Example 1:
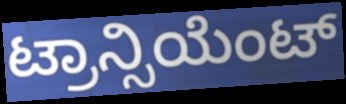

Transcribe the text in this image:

ಟ್ರಾನ್ಸಿಯೆಂಟ್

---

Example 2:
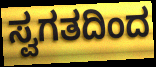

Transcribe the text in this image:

ಸ್ವಗತದಿಂದ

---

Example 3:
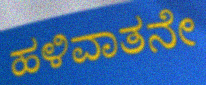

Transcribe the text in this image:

ಹಳಿವಾತನೇ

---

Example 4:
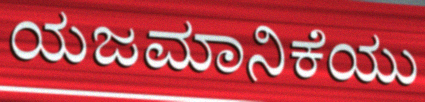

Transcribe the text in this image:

ಯಜಮಾನಿಕೆಯು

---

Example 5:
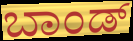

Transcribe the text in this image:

ಬಾಂಡ್